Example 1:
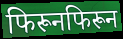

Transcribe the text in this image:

फिरूनफिरून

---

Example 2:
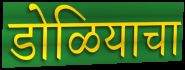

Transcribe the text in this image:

डोळियाचा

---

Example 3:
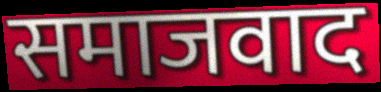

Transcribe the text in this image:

समाजवाद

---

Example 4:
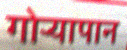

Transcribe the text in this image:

गोऱ्यापान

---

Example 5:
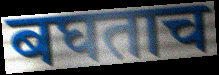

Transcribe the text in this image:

बघताच